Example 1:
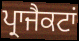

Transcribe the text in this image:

ਪ੍ਰਾਜੈਕਟਾਂ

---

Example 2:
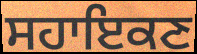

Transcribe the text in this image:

ਸਹਾਇਕਣ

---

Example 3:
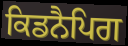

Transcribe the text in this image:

ਕਿਡਨੈਪਿਗ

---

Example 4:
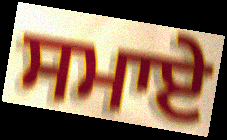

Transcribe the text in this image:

ਸਮਾਏ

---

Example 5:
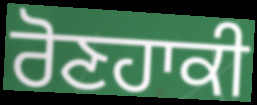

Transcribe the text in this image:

ਰੋਣਹਾਕੀ